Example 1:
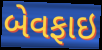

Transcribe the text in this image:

બેવફાઇ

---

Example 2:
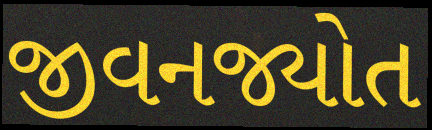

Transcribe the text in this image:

જીવનજ્યોત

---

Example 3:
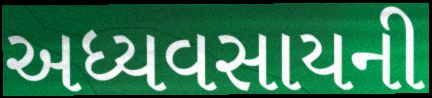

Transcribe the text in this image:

અધ્યવસાયની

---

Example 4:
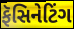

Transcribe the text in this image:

ફૅસિનેટિંગ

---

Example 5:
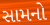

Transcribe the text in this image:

સામનો